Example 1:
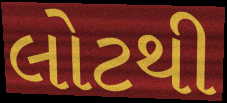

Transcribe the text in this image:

લોટથી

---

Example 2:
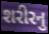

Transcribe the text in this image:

શરીરનુ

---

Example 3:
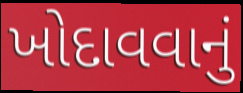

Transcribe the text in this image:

ખોદાવવાનું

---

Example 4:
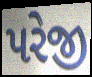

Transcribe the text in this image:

પરેજી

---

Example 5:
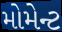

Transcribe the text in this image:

મોમેન્ટ